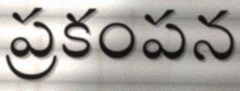
ప్రకంపన